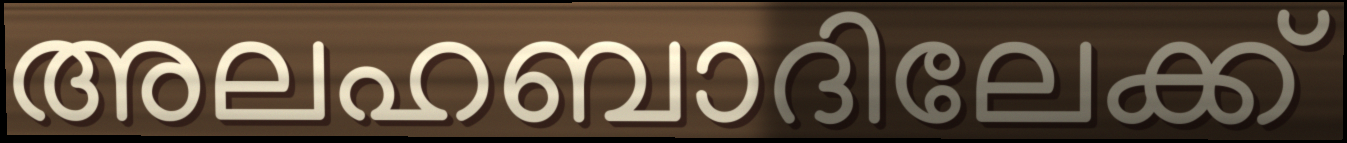
അലഹബാദിലേക്ക്